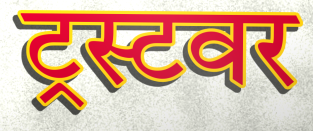
ट्रस्टवर